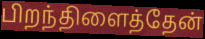
பிறந்திளைத்தேன்